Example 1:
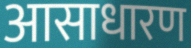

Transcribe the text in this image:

आसाधारण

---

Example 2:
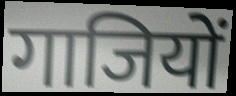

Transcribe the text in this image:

गाजियों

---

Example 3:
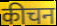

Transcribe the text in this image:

कीचन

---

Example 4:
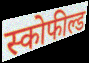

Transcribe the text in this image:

स्कोफील्ड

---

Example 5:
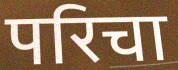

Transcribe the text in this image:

परिचा